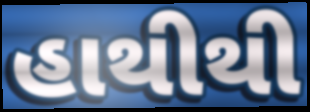
હાથીથી